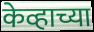
केव्हाच्या